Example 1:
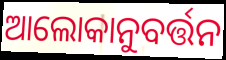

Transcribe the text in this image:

ଆଲୋକାନୁବର୍ତ୍ତନ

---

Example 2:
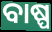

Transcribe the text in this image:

ବାଷ୍ପ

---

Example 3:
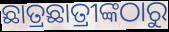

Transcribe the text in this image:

ଛାତ୍ରଛାତ୍ରୀଙ୍କଠାରୁ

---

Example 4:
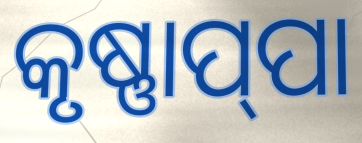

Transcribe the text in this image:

କୃଷ୍ଣାପ୍‌ପା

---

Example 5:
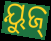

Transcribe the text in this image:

ୟୁଜ୍